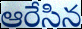
ఆరేసిన